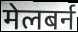
मेलबर्न